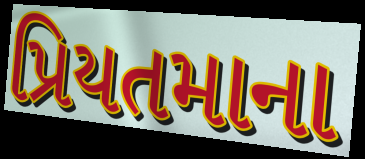
પ્રિયતમાના